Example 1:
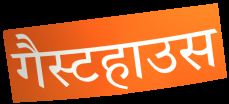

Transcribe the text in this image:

गैस्टहाउस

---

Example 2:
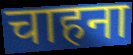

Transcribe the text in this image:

चाहना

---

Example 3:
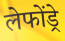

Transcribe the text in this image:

लेफोंड्रे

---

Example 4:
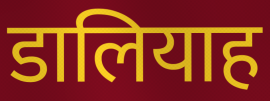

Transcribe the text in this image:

डालियाह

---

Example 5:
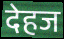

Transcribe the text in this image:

देहज